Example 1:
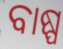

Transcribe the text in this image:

ବାଷ୍ପ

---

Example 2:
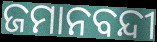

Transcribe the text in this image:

ଜମାନବନ୍ଦୀ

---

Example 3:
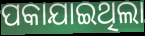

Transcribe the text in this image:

ପକାଯାଇଥିଲା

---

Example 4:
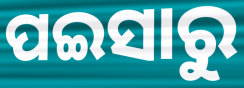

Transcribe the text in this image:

ପଇସାରୁ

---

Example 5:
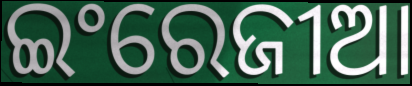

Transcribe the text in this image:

ଇଂରେଜୀଆ